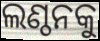
ଲଣ୍ଠନକୁ